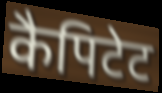
कैपिटेट